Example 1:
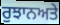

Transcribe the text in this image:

ਰੁਝਾਨਅਤੇ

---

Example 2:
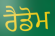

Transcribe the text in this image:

ਰੈਡੋਮ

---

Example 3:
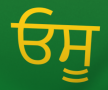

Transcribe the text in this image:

ਓਸੂ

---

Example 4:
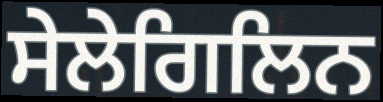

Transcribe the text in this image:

ਸੇਲੇਗਿਲਿਨ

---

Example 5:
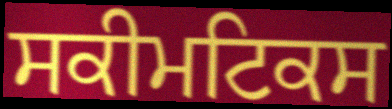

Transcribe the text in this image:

ਸਕੀਮਟਿਕਸ